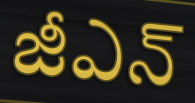
జీఎన్